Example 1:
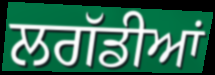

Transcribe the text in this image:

ਲਗੱਡੀਆਂ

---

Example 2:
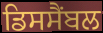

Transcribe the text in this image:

ਡਿਸਸੈਂਬਲ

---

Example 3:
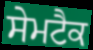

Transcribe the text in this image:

ਸੇਮਟੈਕ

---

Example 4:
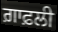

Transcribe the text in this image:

ਗ਼ਾਫ਼ਲੀ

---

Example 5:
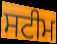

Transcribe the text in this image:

ਸਟੀਮ